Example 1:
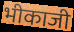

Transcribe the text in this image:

भीकाजी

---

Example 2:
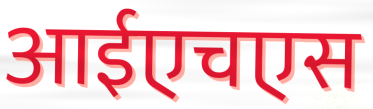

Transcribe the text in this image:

आईएचएस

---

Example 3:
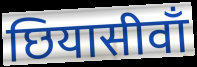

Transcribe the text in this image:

छियासीवाँ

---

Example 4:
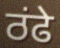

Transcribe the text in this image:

ठंढे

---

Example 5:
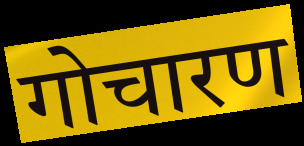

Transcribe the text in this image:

गोचारण